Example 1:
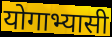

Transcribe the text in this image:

योगाभ्यासी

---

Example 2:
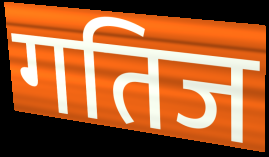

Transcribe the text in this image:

गतिज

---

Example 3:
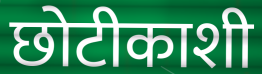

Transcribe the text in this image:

छोटीकाशी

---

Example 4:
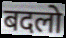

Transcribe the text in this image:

बदलो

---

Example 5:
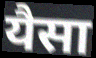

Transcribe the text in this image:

यैसा